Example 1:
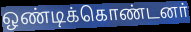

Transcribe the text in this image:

ஒண்டிக்கொண்டனர்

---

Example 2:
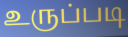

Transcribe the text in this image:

உருப்படி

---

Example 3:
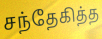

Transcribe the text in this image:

சந்தேகித்த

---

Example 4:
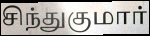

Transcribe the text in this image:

சிந்துகுமார்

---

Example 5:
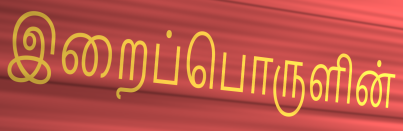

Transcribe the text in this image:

இறைப்பொருளின்